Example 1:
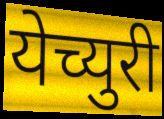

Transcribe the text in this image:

येच्युरी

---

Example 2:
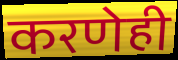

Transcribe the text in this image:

करणेही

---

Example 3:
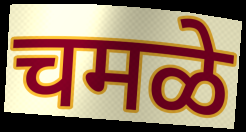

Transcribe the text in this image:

चमळे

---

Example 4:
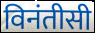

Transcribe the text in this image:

विनंतीसी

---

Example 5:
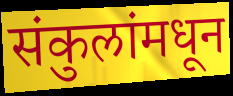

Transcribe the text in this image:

संकुलांमधून